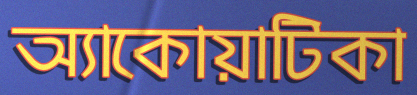
অ্যাকোয়াটিকা